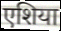
एशिया